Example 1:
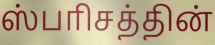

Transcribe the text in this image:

ஸ்பரிசத்தின்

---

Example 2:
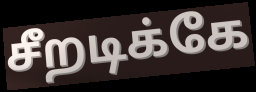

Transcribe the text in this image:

சீறடிக்கே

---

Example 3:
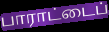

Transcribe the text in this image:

பாராட்டைப்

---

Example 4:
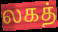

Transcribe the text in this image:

லகத்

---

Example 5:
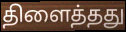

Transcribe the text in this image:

திளைத்தது